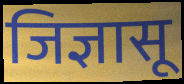
जिज्ञासू